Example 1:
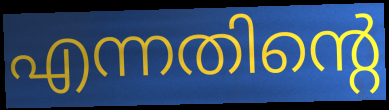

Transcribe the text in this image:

എന്നതിന്റെ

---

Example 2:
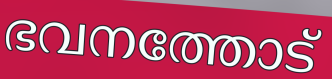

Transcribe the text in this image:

ഭവനത്തോട്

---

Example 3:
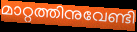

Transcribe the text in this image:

മാറ്റത്തിനുവേണ്ടി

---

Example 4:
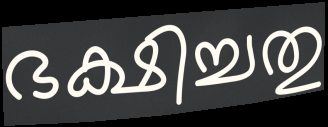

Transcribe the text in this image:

ഭക്ഷിച്ചതു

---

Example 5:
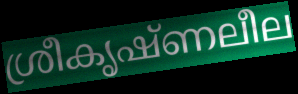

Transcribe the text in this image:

ശ്രീകൃഷ്ണലീല